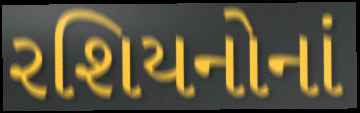
રશિયનોનાં